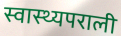
स्वास्थ्यपराली